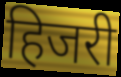
हिजरी